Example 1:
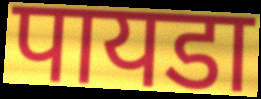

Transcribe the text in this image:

पायडा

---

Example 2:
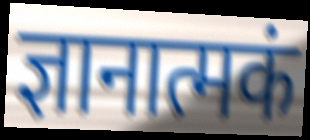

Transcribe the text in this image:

ज्ञानात्मकं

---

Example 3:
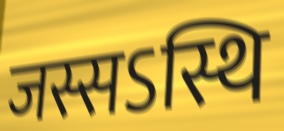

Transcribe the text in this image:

जस्सऽस्थि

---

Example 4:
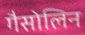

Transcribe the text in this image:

गैसोलिन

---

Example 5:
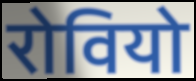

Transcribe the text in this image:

रोवियो